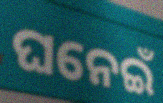
ଘନେଇଁ